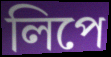
লিপে